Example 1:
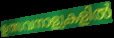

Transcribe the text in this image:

ഉത്സവനാളുകളിൽ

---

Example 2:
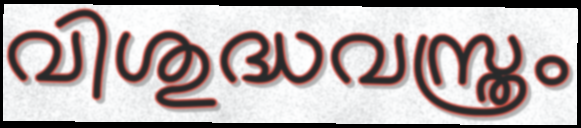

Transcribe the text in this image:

വിശുദ്ധവസ്ത്രം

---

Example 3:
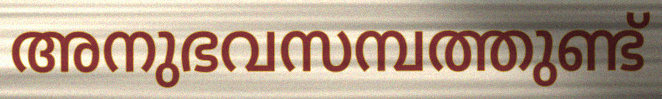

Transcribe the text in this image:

അനുഭവസമ്പത്തുണ്ട്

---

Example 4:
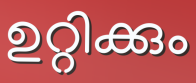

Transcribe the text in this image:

ഉറ്റിക്കും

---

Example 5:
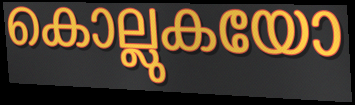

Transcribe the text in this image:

കൊല്ലുകയോ